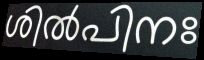
ശിൽപിനഃ